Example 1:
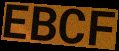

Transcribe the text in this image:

EBCF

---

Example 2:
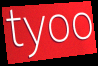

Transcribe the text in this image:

tyoo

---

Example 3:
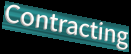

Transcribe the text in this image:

Contracting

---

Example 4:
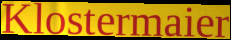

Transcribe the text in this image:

Klostermaier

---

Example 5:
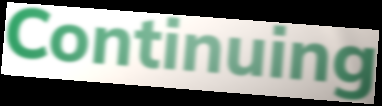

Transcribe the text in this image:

Continuing